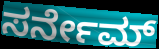
ಸರ್ನೇಮ್